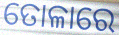
ତୋଳାରେ